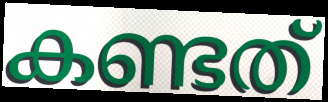
കണ്ടത്